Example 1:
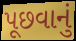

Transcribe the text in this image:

પૂછવાનું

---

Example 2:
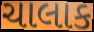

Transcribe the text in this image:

ચાલાક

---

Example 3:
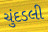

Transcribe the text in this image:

ચુંદડલી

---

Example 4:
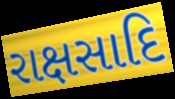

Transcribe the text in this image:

રાક્ષસાદિ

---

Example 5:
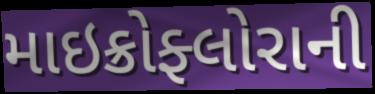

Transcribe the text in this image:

માઇક્રોફ્લોરાની